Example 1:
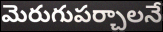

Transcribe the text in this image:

మెరుగుపర్చాలనే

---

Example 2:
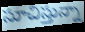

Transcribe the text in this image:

సూచిస్తున్నా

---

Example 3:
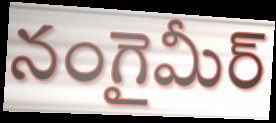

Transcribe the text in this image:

నంగైమీర్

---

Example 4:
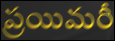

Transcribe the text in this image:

ప్రయిమరీ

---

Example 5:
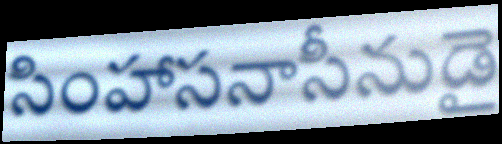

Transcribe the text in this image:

సింహాసనాసీనుడై